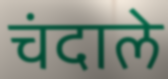
चंदाले